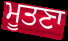
ਮੂਤਣਾ